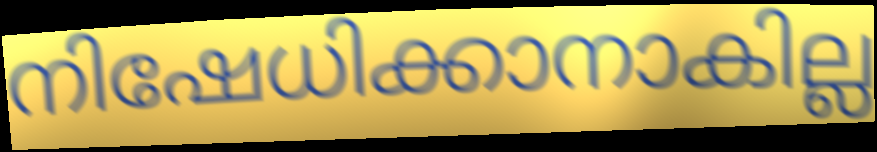
നിഷേധിക്കാനാകില്ല